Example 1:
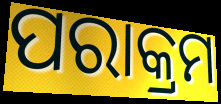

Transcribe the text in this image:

ପରାକ୍ରମ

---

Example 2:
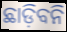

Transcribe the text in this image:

ଛାଡ଼ିବନି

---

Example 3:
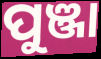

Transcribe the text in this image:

ପୁଞ୍ଜା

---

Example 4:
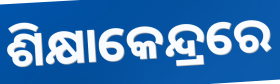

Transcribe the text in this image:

ଶିକ୍ଷାକେନ୍ଦ୍ରରେ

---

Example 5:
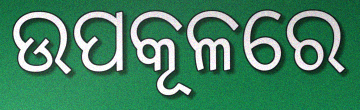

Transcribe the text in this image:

ଉପକୂଳରେ